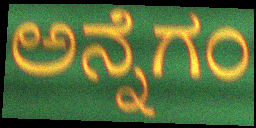
ಅನ್ನೆಗಂ